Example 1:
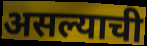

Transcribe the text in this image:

असल्याची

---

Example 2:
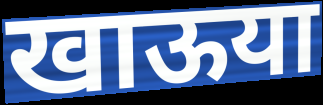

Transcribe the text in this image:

खाऊया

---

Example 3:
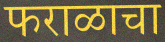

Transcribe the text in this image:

फराळाचा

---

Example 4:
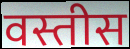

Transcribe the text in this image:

वस्तीस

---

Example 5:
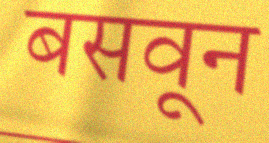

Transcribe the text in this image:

बसवून